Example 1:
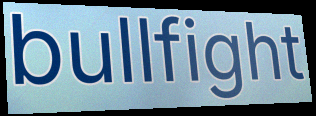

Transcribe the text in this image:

bullfight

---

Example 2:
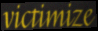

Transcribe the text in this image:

victimize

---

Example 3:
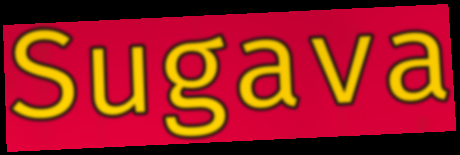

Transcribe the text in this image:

Sugava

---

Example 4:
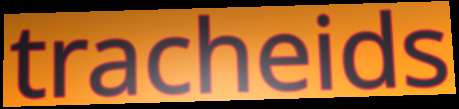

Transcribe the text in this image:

tracheids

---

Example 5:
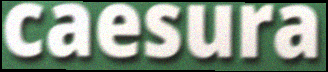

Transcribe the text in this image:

caesura